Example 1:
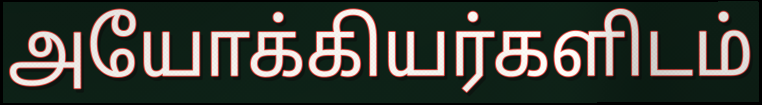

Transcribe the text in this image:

அயோக்கியர்களிடம்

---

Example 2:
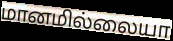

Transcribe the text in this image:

மானமில்லையா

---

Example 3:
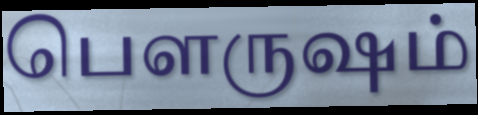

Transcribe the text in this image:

பௌருஷம்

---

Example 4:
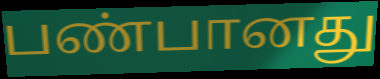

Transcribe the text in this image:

பண்பானது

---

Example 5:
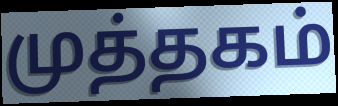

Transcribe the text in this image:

முத்தகம்